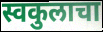
स्वकुलाचा